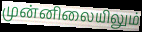
முன்னிலையிலும்